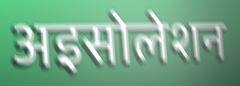
अइसोलेशन